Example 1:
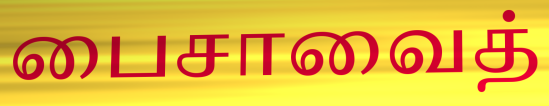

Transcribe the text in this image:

பைசாவைத்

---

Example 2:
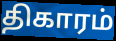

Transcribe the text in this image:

திகாரம்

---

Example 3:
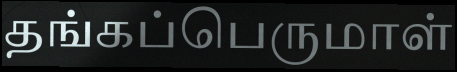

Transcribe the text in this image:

தங்கப்பெருமாள்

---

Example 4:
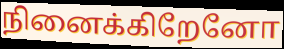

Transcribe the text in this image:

நினைக்கிறேனோ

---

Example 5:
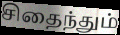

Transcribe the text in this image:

சிதைந்தும்